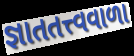
જ્ઞાતતત્ત્વવાળા